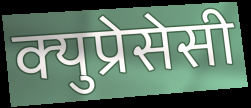
क्युप्रेसेसी